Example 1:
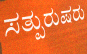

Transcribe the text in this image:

ಸತ್ಪುರುಷರು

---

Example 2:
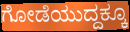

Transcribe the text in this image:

ಗೋಡೆಯುದ್ದಕ್ಕೂ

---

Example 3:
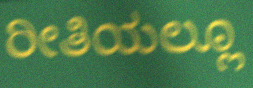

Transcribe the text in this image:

ರೀತಿಯಲ್ಲೂ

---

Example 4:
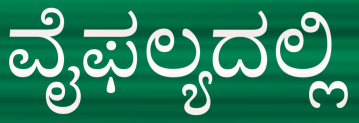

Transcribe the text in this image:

ವೈಫಲ್ಯದಲ್ಲಿ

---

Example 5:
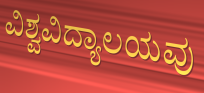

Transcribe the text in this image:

ವಿಶ್ವವಿದ್ಯಾಲಯವು